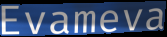
Evameva